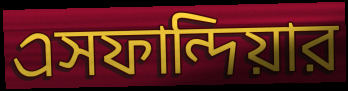
এসফান্দিয়ার